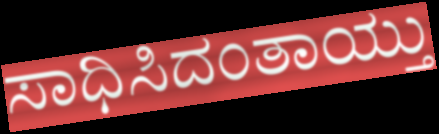
ಸಾಧಿಸಿದಂತಾಯ್ತು